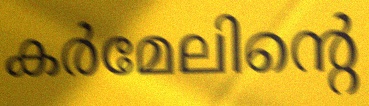
കർമേലിന്റെ